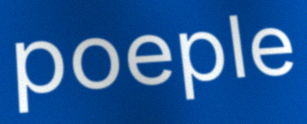
poeple